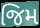
જિમ